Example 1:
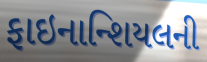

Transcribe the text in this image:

ફાઇનાન્શિયલની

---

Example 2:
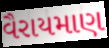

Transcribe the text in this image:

વૈરાયમાણ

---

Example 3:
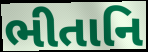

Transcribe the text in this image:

ભીતાનિ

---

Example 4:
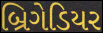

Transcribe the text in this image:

બ્રિગેડિયર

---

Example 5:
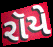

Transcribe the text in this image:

રૉયે